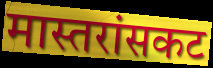
मास्तरांसकट